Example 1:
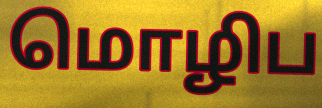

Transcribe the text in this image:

மொழிப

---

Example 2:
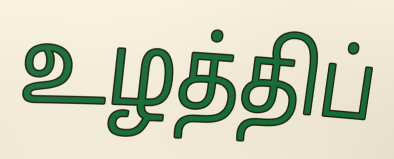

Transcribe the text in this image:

உழத்திப்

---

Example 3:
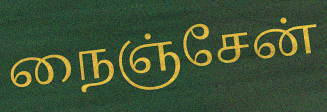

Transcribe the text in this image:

நைஞ்சேன்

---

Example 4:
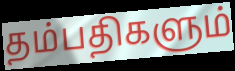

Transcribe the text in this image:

தம்பதிகளும்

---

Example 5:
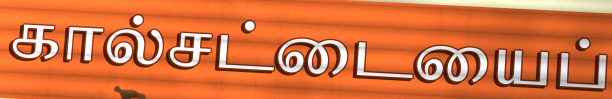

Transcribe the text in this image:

கால்சட்டையைப்